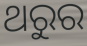
ଥରୁର